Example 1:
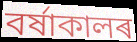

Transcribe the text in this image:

বৰ্ষাকালৰ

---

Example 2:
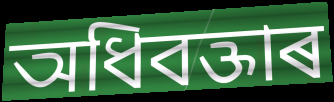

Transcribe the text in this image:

অধিবক্তাৰ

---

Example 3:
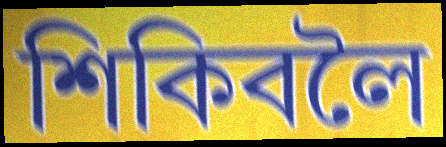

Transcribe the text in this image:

শিকিবলৈ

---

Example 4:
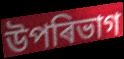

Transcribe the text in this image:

উপৰিভাগ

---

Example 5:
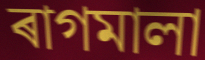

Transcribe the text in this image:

ৰাগমালা